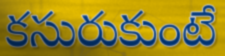
కసురుకుంటే